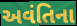
અવંતિના